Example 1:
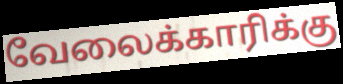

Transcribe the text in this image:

வேலைக்காரிக்கு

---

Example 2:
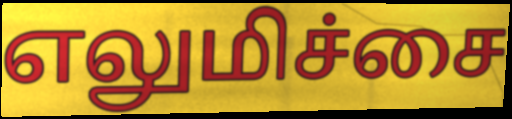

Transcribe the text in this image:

எலுமிச்சை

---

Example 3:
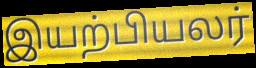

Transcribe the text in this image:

இயற்பியலர்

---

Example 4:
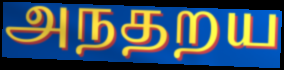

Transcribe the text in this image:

அநதறய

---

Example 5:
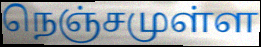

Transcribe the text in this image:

நெஞ்சமுள்ள